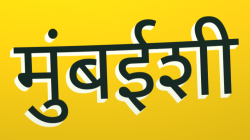
मुंबईशी